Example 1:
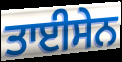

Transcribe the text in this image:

ਤਾਈਸੇਨ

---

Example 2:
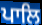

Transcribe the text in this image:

ਪਾਲਿ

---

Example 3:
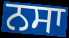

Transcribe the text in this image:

ਨਸਾ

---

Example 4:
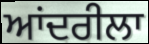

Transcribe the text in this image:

ਆਂਦਰੀਲਾ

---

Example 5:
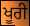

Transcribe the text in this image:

ਖੂਰੀ